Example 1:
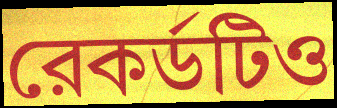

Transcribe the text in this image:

রেকর্ডটিও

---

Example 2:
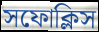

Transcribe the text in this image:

সফোক্লিস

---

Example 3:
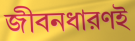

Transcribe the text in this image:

জীবনধারণই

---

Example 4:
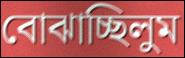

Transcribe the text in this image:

বোঝাচ্ছিলুম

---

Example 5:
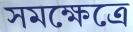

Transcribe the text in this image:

সমক্ষেত্রে